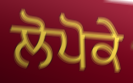
ਲੋਪੋਕੇ